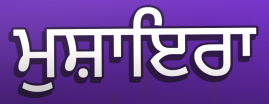
ਮੁਸ਼ਾਇਰਾ